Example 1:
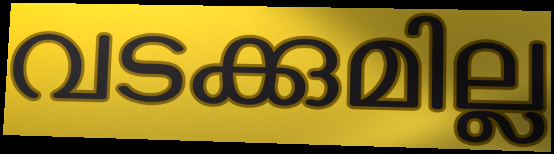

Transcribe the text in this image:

വടക്കുമില്ല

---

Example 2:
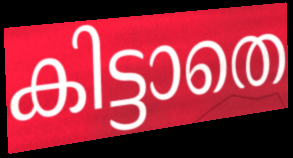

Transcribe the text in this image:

കിട്ടാതെ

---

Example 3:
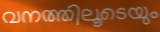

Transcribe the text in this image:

വനത്തിലൂടെയും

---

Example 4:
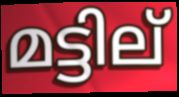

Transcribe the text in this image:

മട്ടില്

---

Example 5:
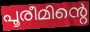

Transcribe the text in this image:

പൂരീമിന്റെ